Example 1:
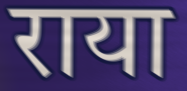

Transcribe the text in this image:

राया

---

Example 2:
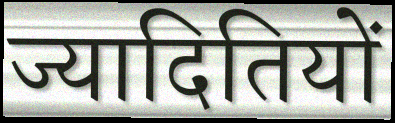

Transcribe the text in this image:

ज्यादितियों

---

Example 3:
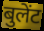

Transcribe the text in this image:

बुलेंट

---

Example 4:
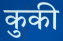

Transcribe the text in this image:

कुकी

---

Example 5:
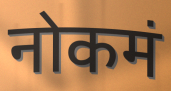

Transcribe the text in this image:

नोकमं